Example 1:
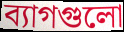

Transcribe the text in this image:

ব্যাগগুলো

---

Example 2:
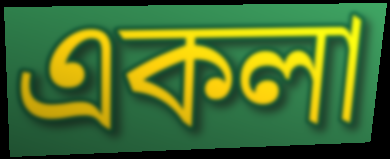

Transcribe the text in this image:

একলা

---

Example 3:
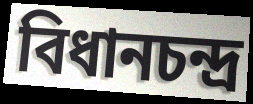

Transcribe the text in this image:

বিধানচন্দ্র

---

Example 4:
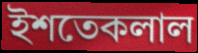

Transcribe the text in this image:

ইশতেকলাল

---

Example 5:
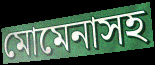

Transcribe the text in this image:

মোমেনাসহ